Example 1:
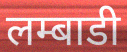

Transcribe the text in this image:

लम्बाडी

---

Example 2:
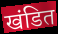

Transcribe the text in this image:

खंडित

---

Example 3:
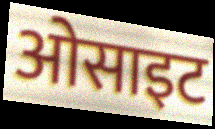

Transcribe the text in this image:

ओसाइट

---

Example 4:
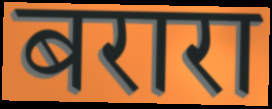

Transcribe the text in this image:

बरारा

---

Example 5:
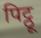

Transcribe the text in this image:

पिट्ठू